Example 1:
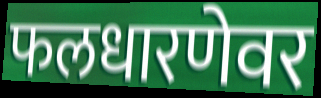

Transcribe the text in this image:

फलधारणेवर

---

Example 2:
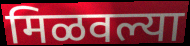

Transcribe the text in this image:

मिळवल्या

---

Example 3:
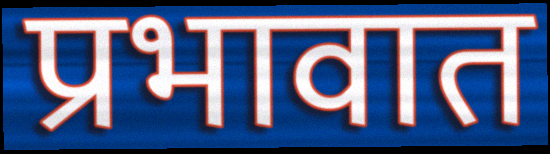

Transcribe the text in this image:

प्रभावात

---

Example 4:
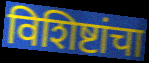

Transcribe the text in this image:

विशिष्टांचा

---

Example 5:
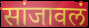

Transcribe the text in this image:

सांजावलं